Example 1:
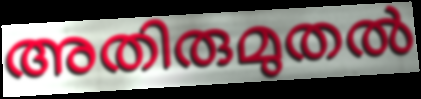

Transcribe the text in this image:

അതിരുമുതൽ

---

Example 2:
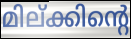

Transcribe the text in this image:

മില്ക്കിന്റെ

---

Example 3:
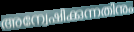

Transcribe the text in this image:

അന്വേഷിക്കുന്നതിനും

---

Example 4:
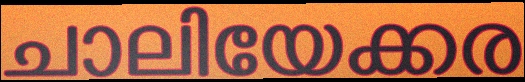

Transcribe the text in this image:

ചാലിയേക്കര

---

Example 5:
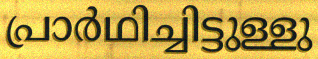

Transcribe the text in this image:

പ്രാർഥിച്ചിട്ടുള്ളു